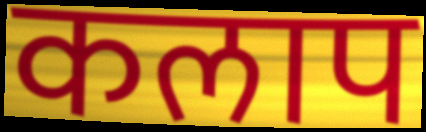
कलाप